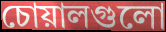
চোয়ালগুলো